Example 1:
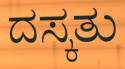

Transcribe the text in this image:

ದಸ್ಕತು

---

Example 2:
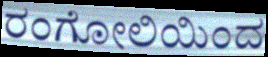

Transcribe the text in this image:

ರಂಗೋಲಿಯಿಂದ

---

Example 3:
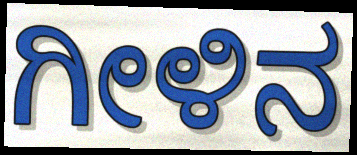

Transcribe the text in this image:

ಗೀಳಿನ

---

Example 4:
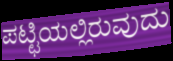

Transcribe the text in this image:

ಪಟ್ಟಿಯಲ್ಲಿರುವುದು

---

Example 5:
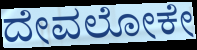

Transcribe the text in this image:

ದೇವಲೋಕೇ